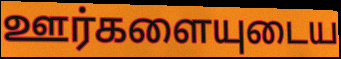
ஊர்களையுடைய